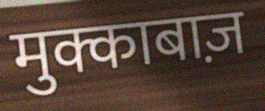
मुक्काबाज़